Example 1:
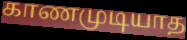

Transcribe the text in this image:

காணமுடியாத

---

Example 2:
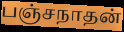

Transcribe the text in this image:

பஞ்சநாதன்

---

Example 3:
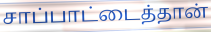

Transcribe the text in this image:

சாப்பாட்டைத்தான்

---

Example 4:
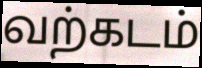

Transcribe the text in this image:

வற்கடம்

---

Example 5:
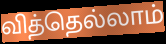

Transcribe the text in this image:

வித்தெல்லாம்